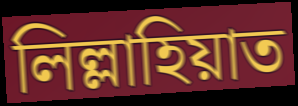
লিল্লাহিয়াত